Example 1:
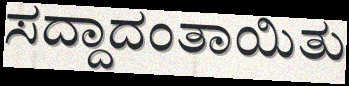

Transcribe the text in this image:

ಸದ್ದಾದಂತಾಯಿತು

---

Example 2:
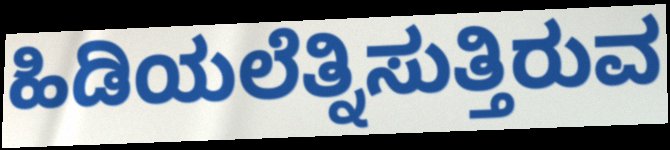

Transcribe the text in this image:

ಹಿಡಿಯಲೆತ್ನಿಸುತ್ತಿರುವ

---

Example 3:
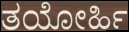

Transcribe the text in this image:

ತಯೋರ್ಹಿ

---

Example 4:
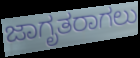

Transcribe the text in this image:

ಜಾಗೃತರಾಗಲು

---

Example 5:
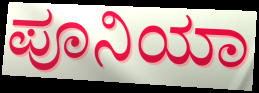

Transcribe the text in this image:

ಪೂನಿಯಾ